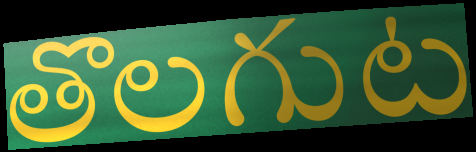
తొలగుట